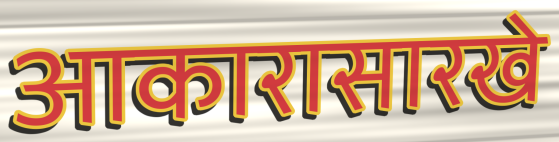
आकारासारखे